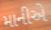
માનીએ